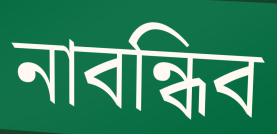
নাবন্ধিব